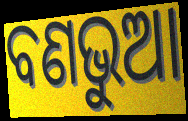
ବଣଭୁଆ